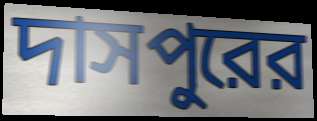
দাসপুরের